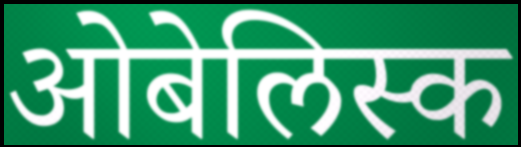
ओबेलिस्क